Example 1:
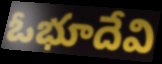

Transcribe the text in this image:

ఓభూదేవి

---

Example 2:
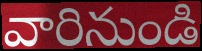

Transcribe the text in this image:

వారినుండి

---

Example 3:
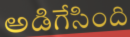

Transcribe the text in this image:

అడిగేసింది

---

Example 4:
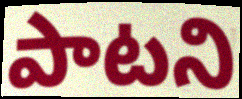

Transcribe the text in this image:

పాటని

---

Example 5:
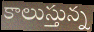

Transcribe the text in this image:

కాలుస్తున్న